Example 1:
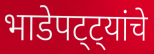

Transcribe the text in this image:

भाडेपट्ट्यांचे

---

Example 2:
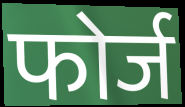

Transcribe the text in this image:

फोर्ज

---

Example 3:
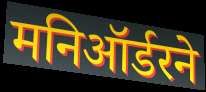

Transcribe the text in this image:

मनिऑर्डरने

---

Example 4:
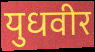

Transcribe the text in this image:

युधवीर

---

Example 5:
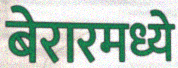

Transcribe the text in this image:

बेरारमध्ये